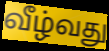
வீழ்வது